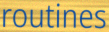
routines